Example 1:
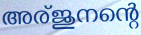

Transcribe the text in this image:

അര്ജുനന്റെ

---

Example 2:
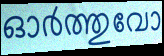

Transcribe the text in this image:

ഓർത്തുവോ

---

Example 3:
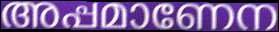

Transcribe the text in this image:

അപ്പമാണേന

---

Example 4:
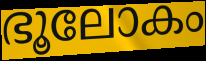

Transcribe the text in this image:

ഭൂലോകം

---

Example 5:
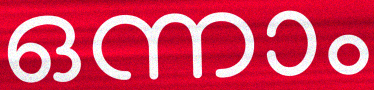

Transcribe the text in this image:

ഒന്നാം